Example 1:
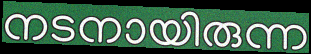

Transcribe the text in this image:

നടനായിരുന്ന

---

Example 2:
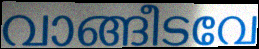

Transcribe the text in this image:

വാങ്ങീടവേ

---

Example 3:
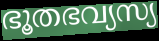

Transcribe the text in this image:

ഭൂതഭവ്യസ്യ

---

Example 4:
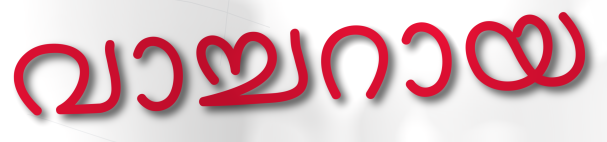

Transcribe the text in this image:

വാച്ചറായ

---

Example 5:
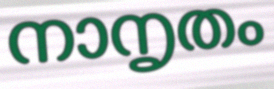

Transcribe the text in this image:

നാനൃതം